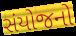
સંયોજનો